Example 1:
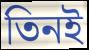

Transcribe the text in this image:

তিনই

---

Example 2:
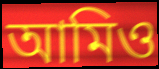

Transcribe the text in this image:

আমিও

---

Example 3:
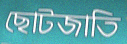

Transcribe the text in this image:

ছোটজাতি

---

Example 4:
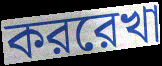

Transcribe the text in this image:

কররেখা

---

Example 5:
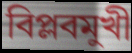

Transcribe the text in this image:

বিপ্লবমুখী